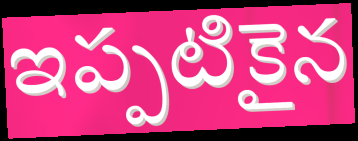
ఇప్పటికైన